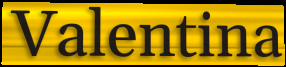
Valentina